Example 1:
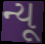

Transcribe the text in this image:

ન્યૂ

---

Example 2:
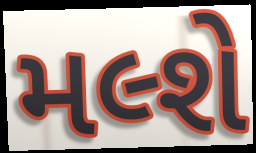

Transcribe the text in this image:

મલ્શે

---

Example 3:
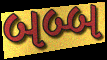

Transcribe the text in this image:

બબ્બ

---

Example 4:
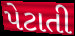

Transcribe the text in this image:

પેટાતી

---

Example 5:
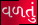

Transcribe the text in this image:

વળતું